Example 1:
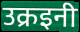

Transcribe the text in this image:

उक्रइनी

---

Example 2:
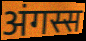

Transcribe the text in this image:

अंगस्स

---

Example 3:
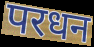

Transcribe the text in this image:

परधन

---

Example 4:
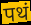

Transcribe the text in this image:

पथं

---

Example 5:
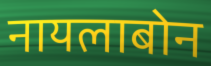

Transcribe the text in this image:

नायलाबोन